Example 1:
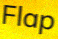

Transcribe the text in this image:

Flap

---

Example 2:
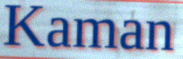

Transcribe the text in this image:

Kaman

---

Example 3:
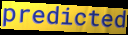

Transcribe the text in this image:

predicted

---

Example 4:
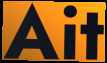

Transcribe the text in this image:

Ait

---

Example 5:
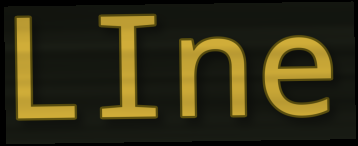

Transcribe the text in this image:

LIne